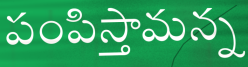
పంపిస్తామన్న